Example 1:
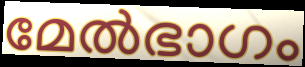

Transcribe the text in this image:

മേൽഭാഗം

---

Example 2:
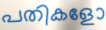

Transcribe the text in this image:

പതികളോ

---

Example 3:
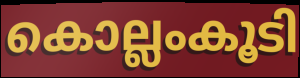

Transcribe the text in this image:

കൊല്ലംകൂടി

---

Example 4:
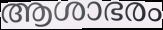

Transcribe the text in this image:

ആശാഭരം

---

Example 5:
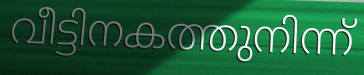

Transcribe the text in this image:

വീട്ടിനകത്തുനിന്ന്